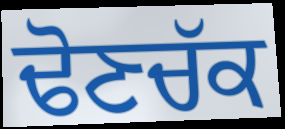
ਢੋਣਚੱਕ